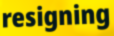
resigning